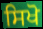
ਸਿਖੋ